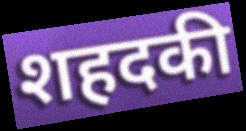
शहदकी